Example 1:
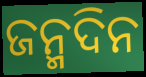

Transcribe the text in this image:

ଜନ୍ମଦିନ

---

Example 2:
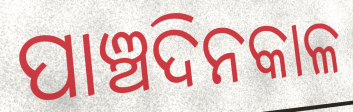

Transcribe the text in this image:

ପାଞ୍ଚଦିନକାଳ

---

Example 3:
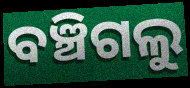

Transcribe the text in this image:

ବଞ୍ଚିଗଲୁ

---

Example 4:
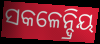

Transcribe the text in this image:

ସକଳେନ୍ଦ୍ରିୟ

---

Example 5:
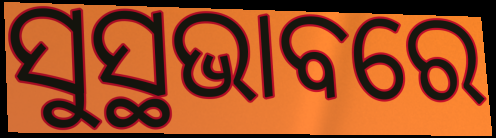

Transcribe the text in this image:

ସୁସ୍ଥଭାବରେ